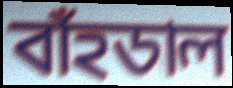
বাঁহডাল